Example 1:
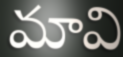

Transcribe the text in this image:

మావి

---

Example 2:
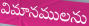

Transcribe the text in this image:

విమానములను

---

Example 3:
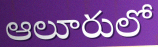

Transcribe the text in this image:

ఆలూరులో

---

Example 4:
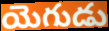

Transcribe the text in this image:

యెగుడు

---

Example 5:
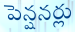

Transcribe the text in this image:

పెన్షనర్లు